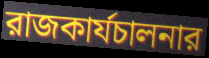
রাজকার্যচালনার